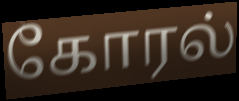
கோரல்